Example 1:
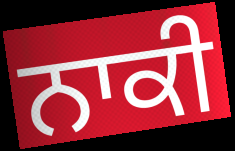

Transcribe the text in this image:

ਨਾਕੀ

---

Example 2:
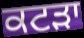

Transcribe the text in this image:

ਕਟੜਾ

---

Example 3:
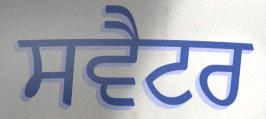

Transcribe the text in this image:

ਸਵੈਟਰ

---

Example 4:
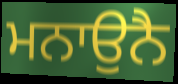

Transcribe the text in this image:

ਮਨਾਉਨੈ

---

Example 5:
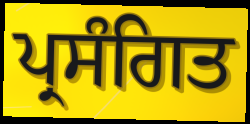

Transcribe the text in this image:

ਪ੍ਰਸੰਗਿਤ